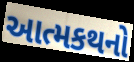
આત્મકથનો